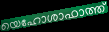
യെഹോശാഫാത്ത്